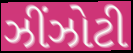
ઝીંઝોટી